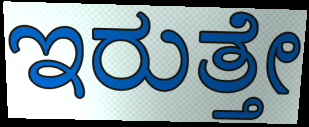
ಇರುತ್ತೇ